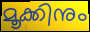
മൂക്കിനും